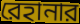
রেহানার